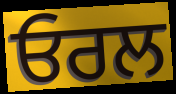
ਓਰਲ